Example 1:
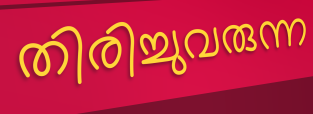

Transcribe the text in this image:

തിരിച്ചുവരുന്ന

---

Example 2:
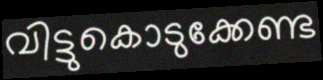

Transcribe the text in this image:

വിട്ടുകൊടുക്കേണ്ട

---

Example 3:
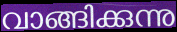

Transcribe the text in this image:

വാങ്ങിക്കുന്നു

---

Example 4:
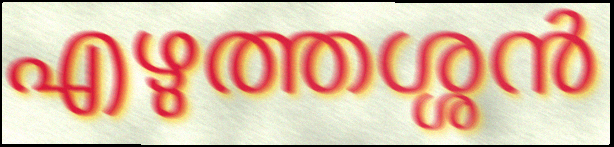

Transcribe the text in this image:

എഴുത്തശ്ശൻ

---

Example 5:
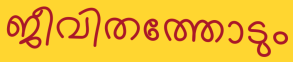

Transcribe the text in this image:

ജീവിതത്തോടും